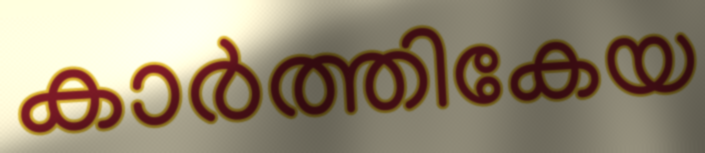
കാർത്തികേയ